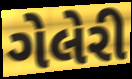
ગેલેરી